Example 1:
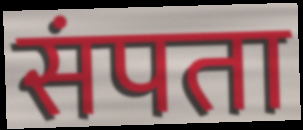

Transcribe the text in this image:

संपता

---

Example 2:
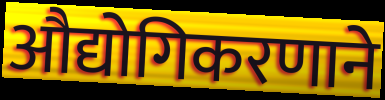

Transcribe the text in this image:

औद्योगिकरणाने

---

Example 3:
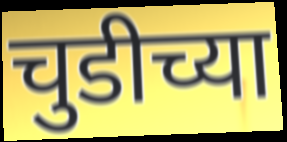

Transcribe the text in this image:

चुडीच्या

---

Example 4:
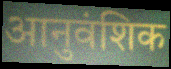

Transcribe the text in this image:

आनुवंशिक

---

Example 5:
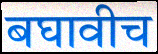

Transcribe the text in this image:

बघावीच